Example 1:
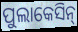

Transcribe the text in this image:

ପୁଲାକେସିନ୍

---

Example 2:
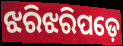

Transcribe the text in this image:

ଝରିଝରିପଡ଼େ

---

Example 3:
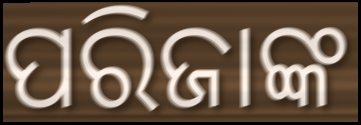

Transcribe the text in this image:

ପରିଜାଙ୍କ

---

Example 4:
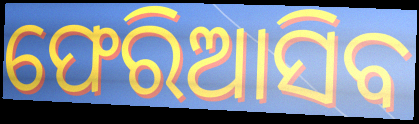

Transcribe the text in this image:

ଫେରିଆସିବ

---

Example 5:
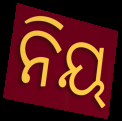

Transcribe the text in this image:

ନିୟ